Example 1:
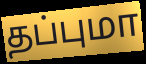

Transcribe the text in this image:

தப்புமா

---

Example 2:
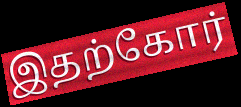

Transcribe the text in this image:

இதற்கோர்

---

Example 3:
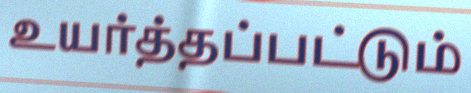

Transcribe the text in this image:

உயர்த்தப்பட்டும்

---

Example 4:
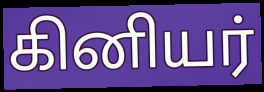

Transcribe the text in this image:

கினியர்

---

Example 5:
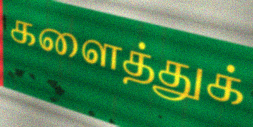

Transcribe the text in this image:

களைத்துக்